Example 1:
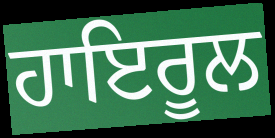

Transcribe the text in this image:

ਹਾਇਰੂਲ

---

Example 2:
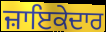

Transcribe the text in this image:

ਜ਼ਾਇਕੇਦਾਰ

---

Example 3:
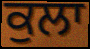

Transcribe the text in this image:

ਕੁਲਾ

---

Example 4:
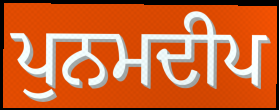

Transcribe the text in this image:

ਪੁਨਮਦੀਪ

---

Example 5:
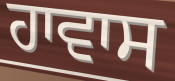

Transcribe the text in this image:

ਹਾਵਾਸ